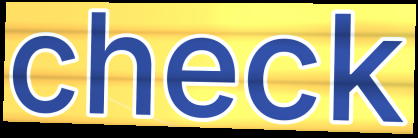
check